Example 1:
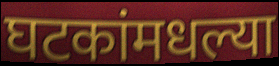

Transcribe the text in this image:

घटकांमधल्या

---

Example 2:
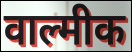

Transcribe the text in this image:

वाल्मीक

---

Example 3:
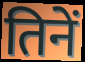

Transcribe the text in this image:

तिनें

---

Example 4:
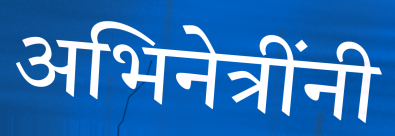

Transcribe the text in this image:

अभिनेत्रींनी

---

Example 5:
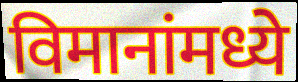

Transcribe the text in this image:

विमानांमध्ये